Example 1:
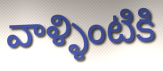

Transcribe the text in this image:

వాళ్ళింటికి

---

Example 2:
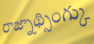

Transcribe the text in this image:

రాజ్నాథ్సింగ్కు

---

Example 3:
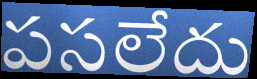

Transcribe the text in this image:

పసలేదు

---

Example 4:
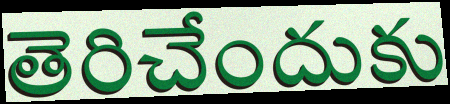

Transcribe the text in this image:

తెరిచేందుకు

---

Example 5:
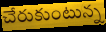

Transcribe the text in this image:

చేరుకుంటున్న